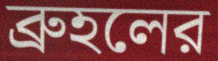
ব্রুহলের